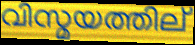
വിസ്മയത്തില്